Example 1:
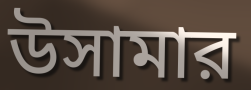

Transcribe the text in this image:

উসামার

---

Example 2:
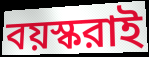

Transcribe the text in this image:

বয়স্করাই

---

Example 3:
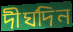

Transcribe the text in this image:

দীর্ঘদিন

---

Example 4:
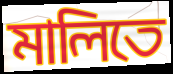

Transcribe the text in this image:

মালিতে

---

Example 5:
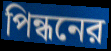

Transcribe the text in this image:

পিন্ধনের